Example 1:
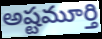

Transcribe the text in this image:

అష్టమూర్తి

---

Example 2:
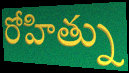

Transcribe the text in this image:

రోహిత్ను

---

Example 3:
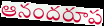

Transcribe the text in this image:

ఆనందరూప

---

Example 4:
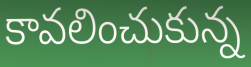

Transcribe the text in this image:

కావలించుకున్న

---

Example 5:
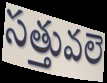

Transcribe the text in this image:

సత్తువలె